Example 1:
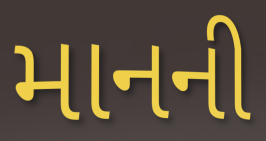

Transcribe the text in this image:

માનની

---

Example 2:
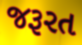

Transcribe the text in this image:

જરૂરત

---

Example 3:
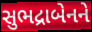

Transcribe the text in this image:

સુભદ્રાબેનને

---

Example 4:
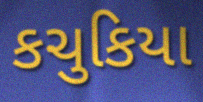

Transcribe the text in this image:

કચુકિયા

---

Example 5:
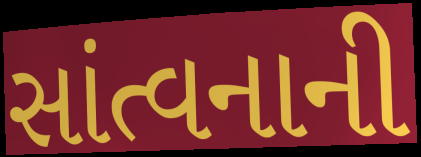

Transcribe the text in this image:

સાંત્વનાની